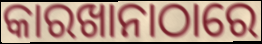
କାରଖାନାଠାରେ